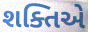
શક્તિએ